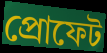
প্রোফেট